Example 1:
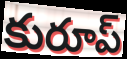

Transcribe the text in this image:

కురూప్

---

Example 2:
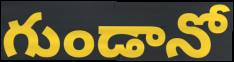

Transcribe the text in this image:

గుండానో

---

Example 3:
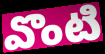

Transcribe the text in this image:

వొంటి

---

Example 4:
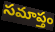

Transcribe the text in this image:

సమాప్తం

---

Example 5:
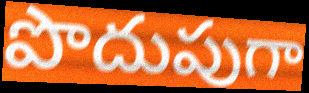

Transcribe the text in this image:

పొదుపుగా